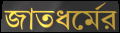
জাতধর্মের